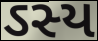
ઽસ્ય